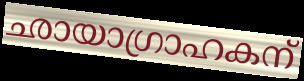
ഛായാഗ്രാഹകന്